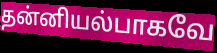
தன்னியல்பாகவே